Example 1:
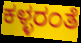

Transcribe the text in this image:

ಕಳ್ಳರಂತೆ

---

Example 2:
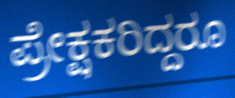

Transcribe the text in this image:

ಪ್ರೇಕ್ಷಕರಿದ್ದರೂ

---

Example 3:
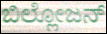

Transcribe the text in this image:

ಬಿಲ್ಲೋಜನ್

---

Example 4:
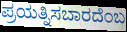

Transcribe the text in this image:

ಪ್ರಯತ್ನಿಸಬಾರದೆಂಬ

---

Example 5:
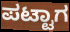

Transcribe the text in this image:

ಪಟ್ಟಾಗ